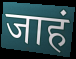
जाहं